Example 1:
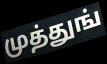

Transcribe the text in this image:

முத்துங்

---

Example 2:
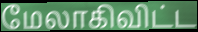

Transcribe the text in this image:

மேலாகிவிட்ட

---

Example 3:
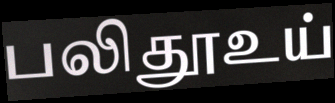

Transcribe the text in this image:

பலிதூஉய்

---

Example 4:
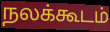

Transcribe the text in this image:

நலக்கூடம்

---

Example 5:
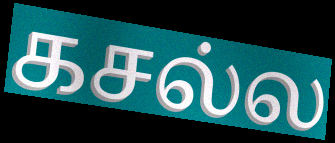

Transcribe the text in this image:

கசல்ல